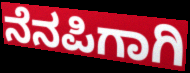
ನೆನಪಿಗಾಗಿ